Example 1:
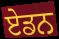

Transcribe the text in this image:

ਏਡਨ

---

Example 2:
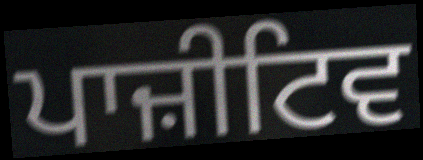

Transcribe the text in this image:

ਪਾਜ਼ੀਟਿਵ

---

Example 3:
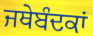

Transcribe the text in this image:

ਜਥੇਬੰਦਕਾਂ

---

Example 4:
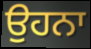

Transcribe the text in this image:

ਉਹਨਾ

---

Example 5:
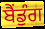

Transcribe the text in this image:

ਬੈਂਡੁੰਗ